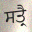
ਸਤ੍ਰੈ